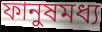
ফানুষমধ্য